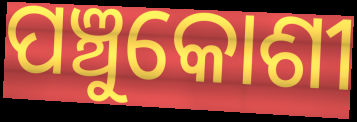
ପଞ୍ଚୁକୋଶୀ